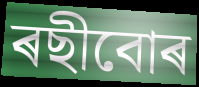
ৰছীবোৰ